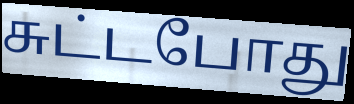
சுட்டபோது